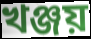
খঞ্জয়